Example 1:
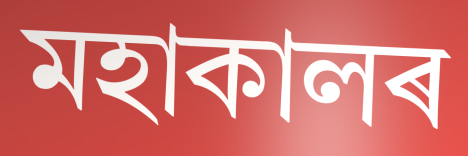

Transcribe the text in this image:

মহাকালৰ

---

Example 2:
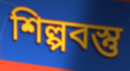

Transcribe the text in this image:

শিল্পবস্তু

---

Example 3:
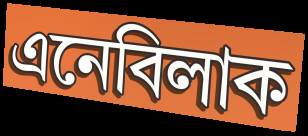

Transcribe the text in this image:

এনেবিলাক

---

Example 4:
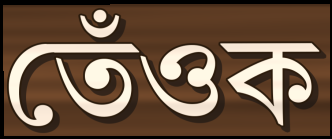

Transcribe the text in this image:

তেঁওক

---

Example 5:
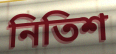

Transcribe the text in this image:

নিতিশ